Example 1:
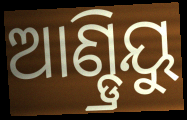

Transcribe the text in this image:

ଆଣ୍ଡ୍ରିୟୁ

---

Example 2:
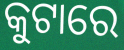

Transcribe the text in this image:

କୁଟାରେ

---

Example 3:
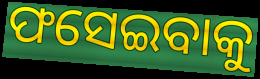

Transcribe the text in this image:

ଫସେଇବାକୁ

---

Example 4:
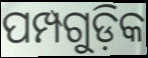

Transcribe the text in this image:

ପମ୍ପଗୁଡ଼ିକ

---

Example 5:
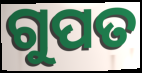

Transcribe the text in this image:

ଗୁପତ